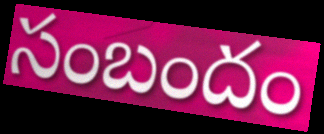
సంబందం